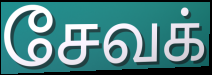
சேவக்